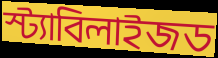
স্ট্যাবিলাইজড